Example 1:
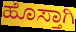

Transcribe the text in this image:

ಹೊಸ್ತಾಗಿ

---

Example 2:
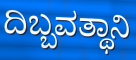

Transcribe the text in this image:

ದಿಬ್ಬವತ್ಥಾನಿ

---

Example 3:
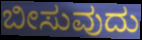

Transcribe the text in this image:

ಬೀಸುವುದು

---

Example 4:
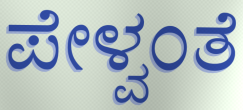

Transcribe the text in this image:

ಪೇಳ್ವಂತೆ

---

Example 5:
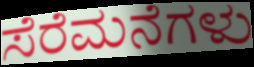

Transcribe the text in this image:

ಸೆರೆಮನೆಗಳು